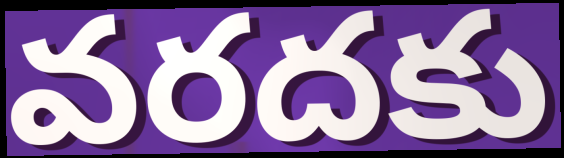
వరదకు